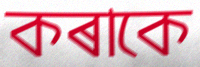
কৰাকে